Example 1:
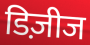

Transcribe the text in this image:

डिज़ीज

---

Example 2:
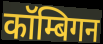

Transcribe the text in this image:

कॉम्बिगन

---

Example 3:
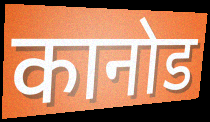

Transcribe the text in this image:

कानोड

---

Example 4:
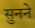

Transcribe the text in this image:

सुनने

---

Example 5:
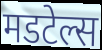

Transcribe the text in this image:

मडटेल्स